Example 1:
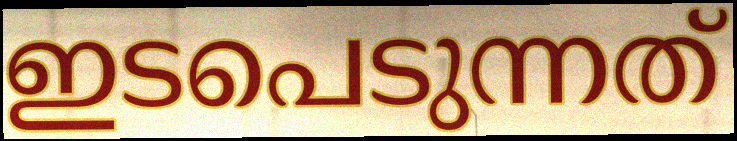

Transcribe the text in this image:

ഇടപെടുന്നത്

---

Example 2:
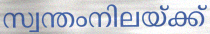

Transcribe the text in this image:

സ്വന്തംനിലയ്ക്ക്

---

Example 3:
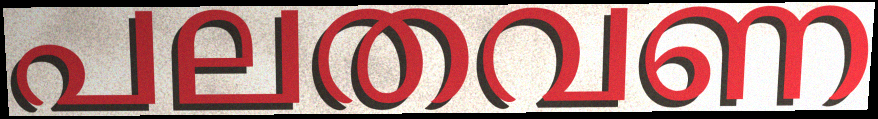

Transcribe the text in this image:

പലതവണ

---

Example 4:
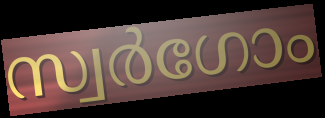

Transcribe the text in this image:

സ്വർഗോം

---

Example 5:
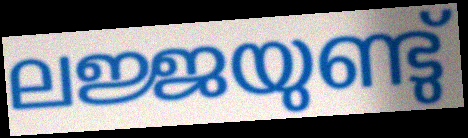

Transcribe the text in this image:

ലജ്ജയുണ്ടു്